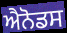
ਐਨੋਡਸ